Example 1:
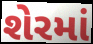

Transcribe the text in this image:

શેરમાં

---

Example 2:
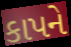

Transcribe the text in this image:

કાપને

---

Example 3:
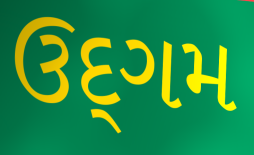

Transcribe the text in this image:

ઉદ્‌ગમ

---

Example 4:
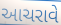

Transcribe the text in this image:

આચરાવે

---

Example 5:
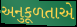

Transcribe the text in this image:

અનુકૂળતાએ